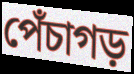
পেঁচাগড়